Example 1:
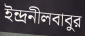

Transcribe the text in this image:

ইন্দ্রনীলবাবুর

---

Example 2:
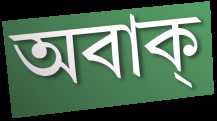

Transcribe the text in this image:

অবাক্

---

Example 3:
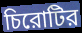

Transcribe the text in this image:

চিরোটির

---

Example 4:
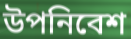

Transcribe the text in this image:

উপনিবেশ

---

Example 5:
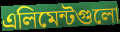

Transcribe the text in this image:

এলিমেন্টগুলো